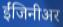
ईंजिनीअर